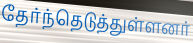
தேர்ந்தெடுத்துள்ளனர்